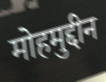
मोहमुद्दीन